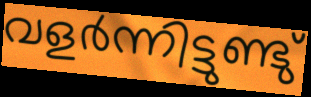
വളർന്നിട്ടുണ്ടു്